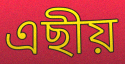
এছীয়